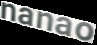
nanao